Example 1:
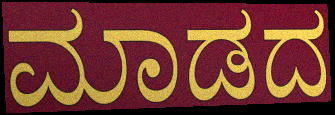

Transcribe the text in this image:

ಮಾಡದ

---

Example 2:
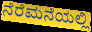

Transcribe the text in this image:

ನೆರೆಮನೆಯಲ್ಲಿ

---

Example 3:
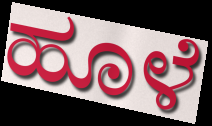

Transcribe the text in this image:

ಹೂಳೆ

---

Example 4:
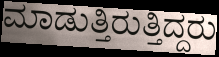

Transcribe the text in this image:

ಮಾಡುತ್ತಿರುತ್ತಿದ್ದರು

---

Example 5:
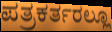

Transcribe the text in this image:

ಪತ್ರಕರ್ತರಲ್ಲೂ